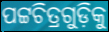
ପଟ୍ଟଚିତ୍ରଗୁଡ଼ିକୁ